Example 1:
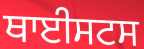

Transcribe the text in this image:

ਥਾਈਸਟਸ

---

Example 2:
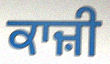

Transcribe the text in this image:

ਕਾਜ਼ੀ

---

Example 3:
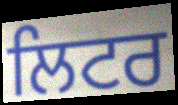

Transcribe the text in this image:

ਲਿਟਰ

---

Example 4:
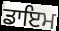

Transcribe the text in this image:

ਡਾਇਮ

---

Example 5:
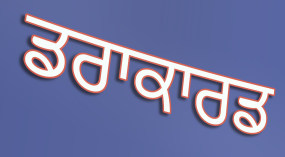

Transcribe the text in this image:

ਡਰਾਕਾਰਡ